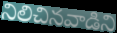
నిలిచినవాడిని